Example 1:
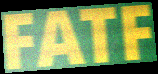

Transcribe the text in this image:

FATF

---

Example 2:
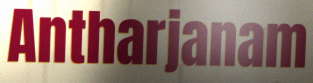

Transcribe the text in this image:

Antharjanam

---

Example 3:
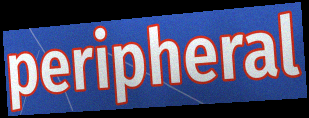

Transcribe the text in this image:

peripheral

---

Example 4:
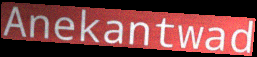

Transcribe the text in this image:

Anekantwad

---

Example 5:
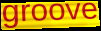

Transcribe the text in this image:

groove